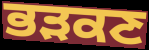
ਭੜਕਣ